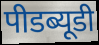
पीडब्यूडी